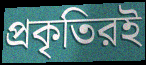
প্রকৃতিরই